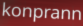
konprann